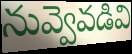
నువ్వెవడివి